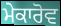
ਮੇਕਾਰੋਵ